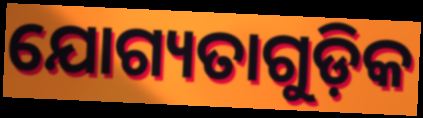
ଯୋଗ୍ୟତାଗୁଡ଼ିକ